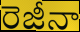
రెజీనా